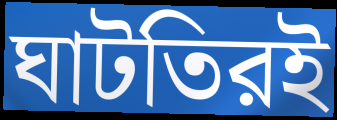
ঘাটতিরই